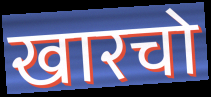
खारचो